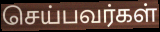
செய்பவர்கள்